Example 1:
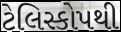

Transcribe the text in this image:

ટેલિસ્કોપથી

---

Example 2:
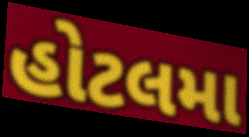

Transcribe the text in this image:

હોટલમા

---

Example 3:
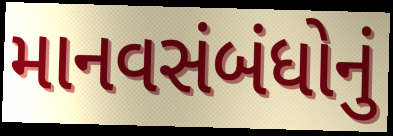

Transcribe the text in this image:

માનવસંબંધોનું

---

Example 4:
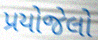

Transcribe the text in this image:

પ્રયોજેલો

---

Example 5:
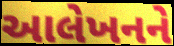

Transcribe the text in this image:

આલેખનને